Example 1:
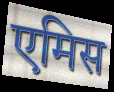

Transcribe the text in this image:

एमिस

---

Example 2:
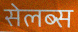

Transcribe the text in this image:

सेलब्स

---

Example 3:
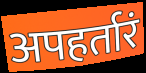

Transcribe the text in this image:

अपहर्तारं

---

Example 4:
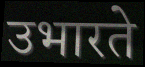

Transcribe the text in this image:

उभारते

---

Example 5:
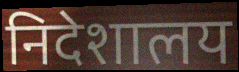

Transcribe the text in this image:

निदेशालय